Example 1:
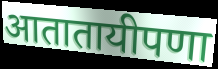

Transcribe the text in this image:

आतातायीपणा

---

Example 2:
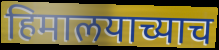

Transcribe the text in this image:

हिमालयाच्याच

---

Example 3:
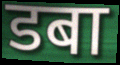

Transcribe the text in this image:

डबा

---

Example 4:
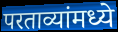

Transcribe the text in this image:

परताव्यांमध्ये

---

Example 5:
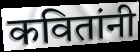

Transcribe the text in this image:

कवितांनी